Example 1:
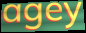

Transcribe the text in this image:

agey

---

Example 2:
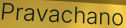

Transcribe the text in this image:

Pravachano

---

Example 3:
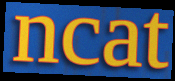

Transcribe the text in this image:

ncat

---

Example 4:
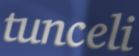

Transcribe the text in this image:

tunceli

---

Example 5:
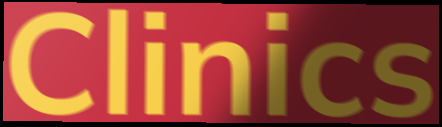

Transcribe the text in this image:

Clinics